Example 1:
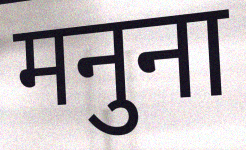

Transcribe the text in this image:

मनुना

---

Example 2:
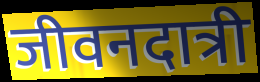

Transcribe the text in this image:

जीवनदात्री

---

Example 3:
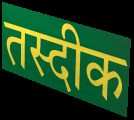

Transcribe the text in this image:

तस्‍दीक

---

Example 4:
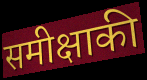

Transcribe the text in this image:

समीक्षाकी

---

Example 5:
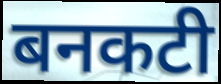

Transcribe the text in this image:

बनकटी